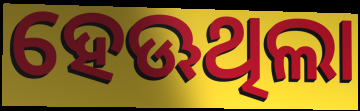
ହେଊଥିଲା